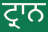
ਟ੍ਰਾਨ